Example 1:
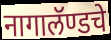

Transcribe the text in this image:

नागालॅण्डचे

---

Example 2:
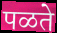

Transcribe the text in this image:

पळते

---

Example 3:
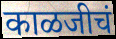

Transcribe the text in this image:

काळजीचं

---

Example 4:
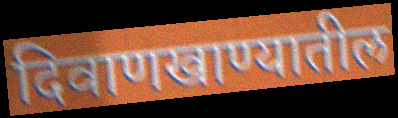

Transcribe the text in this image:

दिवाणखाण्यातील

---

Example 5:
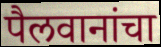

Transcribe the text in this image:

पैलवानांचा